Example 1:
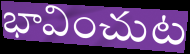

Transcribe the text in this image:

భావించుట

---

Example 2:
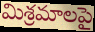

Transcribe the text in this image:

మిశ్రమాలపై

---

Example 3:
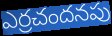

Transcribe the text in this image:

ఎర్రచందనపు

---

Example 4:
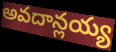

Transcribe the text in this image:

అవదాన్లయ్య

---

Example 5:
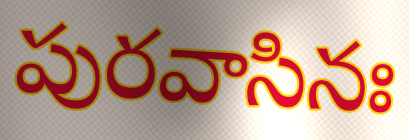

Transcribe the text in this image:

పురవాసినః